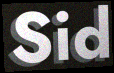
Sid